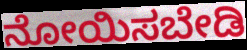
ನೋಯಿಸಬೇಡಿ